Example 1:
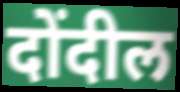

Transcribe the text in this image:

दोंदील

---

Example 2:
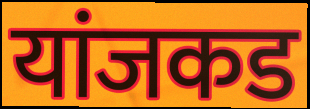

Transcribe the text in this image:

यांजकड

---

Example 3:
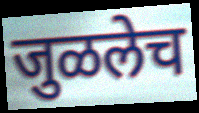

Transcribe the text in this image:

जुळलेच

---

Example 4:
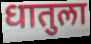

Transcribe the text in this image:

धातुला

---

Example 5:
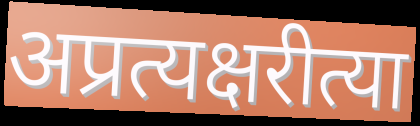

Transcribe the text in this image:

अप्रत्यक्षरीत्या